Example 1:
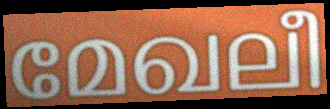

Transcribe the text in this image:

മേഖലീ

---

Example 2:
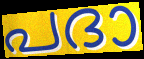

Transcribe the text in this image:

പദാ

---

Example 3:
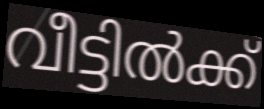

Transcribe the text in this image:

വീട്ടിൽക്ക്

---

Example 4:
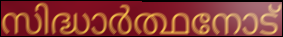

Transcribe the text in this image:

സിദ്ധാർത്ഥനോട്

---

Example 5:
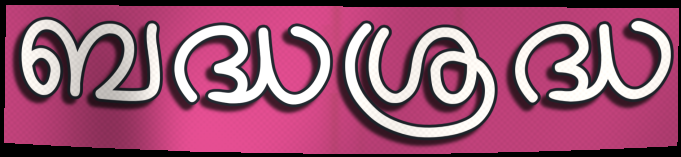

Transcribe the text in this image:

ബദ്ധശ്രദ്ധ